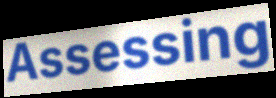
Assessing